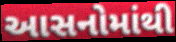
આસનોમાંથી